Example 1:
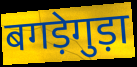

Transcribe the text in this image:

बगड़ेगुड़ा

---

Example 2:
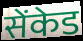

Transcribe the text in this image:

सेंकेड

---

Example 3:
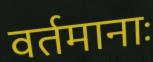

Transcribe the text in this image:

वर्तमानाः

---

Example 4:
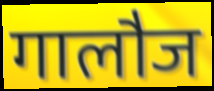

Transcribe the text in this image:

गालौज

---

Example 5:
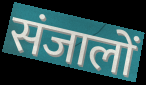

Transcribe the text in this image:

संजालों